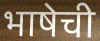
भाषेची